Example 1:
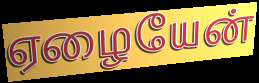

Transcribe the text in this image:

ஏழையேன்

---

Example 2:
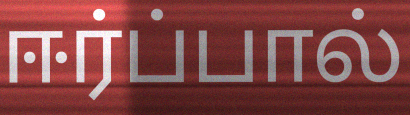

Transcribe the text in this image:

ஈர்ப்பால்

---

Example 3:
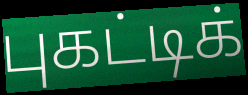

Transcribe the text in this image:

புகட்டிக்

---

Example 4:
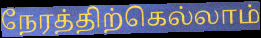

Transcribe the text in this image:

நேரத்திற்கெல்லாம்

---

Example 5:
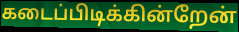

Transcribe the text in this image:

கடைப்பிடிக்கின்றேன்